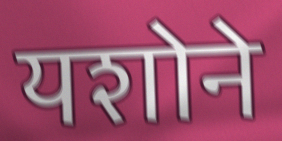
यशोने